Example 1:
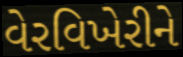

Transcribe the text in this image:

વેરવિખેરીને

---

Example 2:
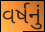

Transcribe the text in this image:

વર્ષનું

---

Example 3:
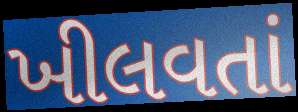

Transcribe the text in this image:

ખીલવતાં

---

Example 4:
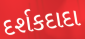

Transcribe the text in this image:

દર્શકદાદા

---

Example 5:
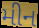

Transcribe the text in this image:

મીન